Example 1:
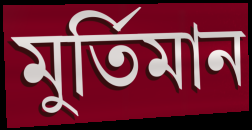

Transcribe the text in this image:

মুর্তিমান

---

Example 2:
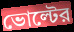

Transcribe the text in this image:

ভোল্টের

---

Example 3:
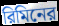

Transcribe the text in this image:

রিমিনের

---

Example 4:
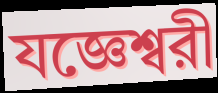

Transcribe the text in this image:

যজ্ঞেশ্বরী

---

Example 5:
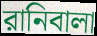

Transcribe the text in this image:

রানিবালা